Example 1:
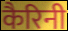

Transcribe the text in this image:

कैरिनी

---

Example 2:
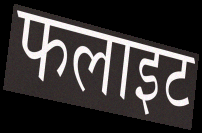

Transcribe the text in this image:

फलाइट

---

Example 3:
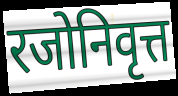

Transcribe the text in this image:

रजोनिवृत्त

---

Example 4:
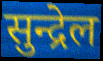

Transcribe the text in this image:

सुन्द्रेल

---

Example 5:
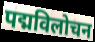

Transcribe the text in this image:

पद्मविलोचन